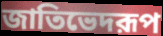
জাতিভেদরূপ